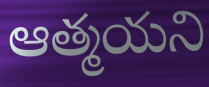
ఆత్మయని